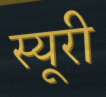
स्यूरी